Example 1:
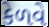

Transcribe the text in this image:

કેળવે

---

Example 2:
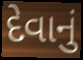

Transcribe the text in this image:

દેવાનું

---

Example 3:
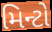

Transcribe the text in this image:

મિન્ટો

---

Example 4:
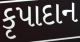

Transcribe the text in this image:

કૃપાદાન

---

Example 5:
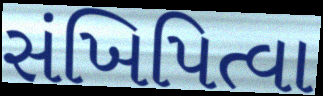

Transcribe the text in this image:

સંખિપિત્વા